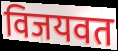
विजयवत